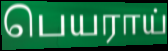
பெயராய்